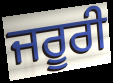
ਜਰੂਰੀ